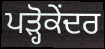
ਪੜ੍ਹੋਕੇਂਦਰ